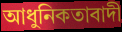
আধুনিকতাবাদী